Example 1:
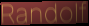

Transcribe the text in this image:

Randolf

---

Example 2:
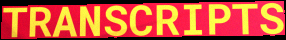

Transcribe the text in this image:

TRANSCRIPTS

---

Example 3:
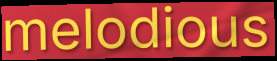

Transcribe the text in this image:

melodious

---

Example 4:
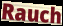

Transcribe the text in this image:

Rauch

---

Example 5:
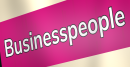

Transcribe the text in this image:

Businesspeople